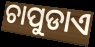
ଚାପୁଡାଏ